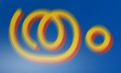
ത്രം